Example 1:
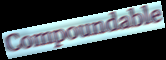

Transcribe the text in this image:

Compoundable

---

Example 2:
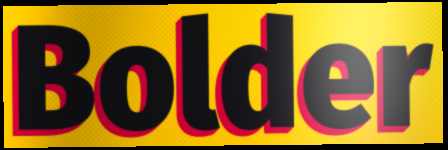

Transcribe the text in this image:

Bolder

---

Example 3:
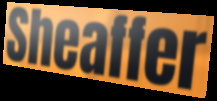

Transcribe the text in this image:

Sheaffer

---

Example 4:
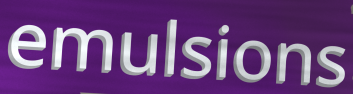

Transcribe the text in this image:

emulsions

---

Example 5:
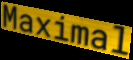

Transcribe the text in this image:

Maximal